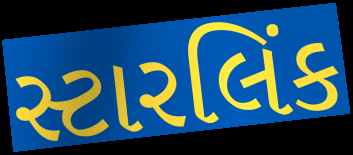
સ્ટારલિંક